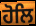
ਹੋਲਿ